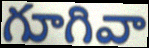
గూగివా